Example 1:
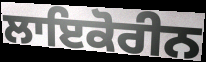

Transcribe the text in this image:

ਲਾਇਕੋਰੀਨ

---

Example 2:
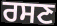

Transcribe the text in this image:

ਰਸਣ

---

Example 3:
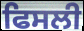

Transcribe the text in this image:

ਫਿਸਲੀ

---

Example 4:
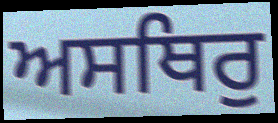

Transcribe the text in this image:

ਅਸਥਿਰੁ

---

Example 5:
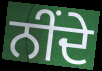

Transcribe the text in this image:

ਨੀਂਦੇ